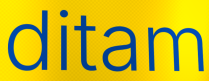
ditam